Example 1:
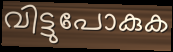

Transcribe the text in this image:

വിട്ടുപോകുക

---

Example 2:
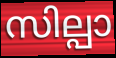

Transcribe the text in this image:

സില്പാ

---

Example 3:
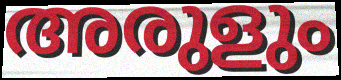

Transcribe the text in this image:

അരുളും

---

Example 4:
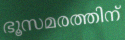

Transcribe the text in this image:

ഭൂസമരത്തിന്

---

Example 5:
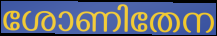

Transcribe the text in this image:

ശോണിതേന